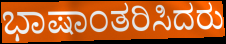
ಭಾಷಾಂತರಿಸಿದರು